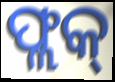
ଫ୍ଲକ୍